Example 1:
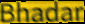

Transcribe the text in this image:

Bhadar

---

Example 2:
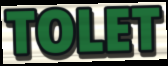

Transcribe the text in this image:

TOLET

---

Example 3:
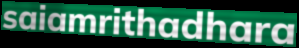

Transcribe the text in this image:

saiamrithadhara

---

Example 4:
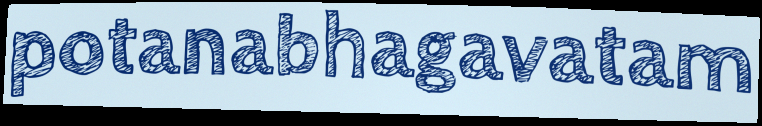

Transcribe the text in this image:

potanabhagavatam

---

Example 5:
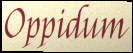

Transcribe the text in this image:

Oppidum